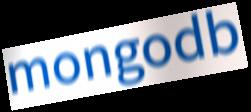
mongodb